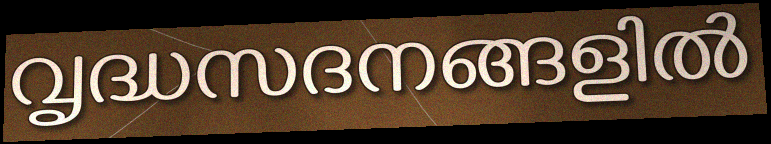
വൃദ്ധസദനങ്ങളിൽ